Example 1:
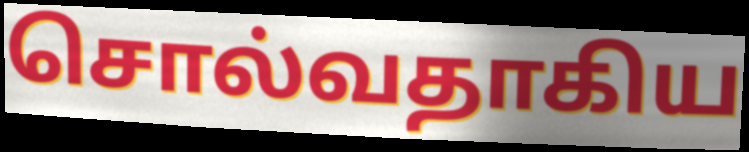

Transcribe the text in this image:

சொல்வதாகிய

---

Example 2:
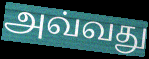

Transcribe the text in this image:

அவ்வது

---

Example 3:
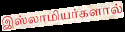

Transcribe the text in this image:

இஸ்லாமியர்களால்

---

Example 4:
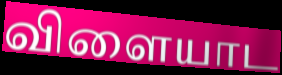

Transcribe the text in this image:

விளையாட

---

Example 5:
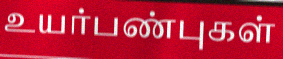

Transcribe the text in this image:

உயர்பண்புகள்